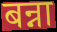
बन्ना